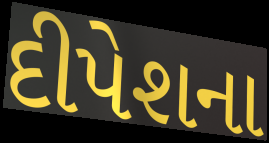
દીપેશના